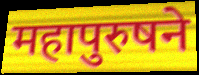
महापुरुषने